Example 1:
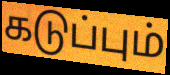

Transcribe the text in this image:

கடுப்பும்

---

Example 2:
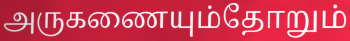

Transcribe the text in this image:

அருகணையும்தோறும்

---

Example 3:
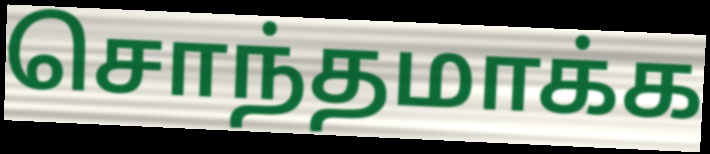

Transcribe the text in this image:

சொந்தமாக்க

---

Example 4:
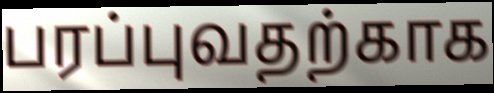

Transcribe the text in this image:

பரப்புவதற்காக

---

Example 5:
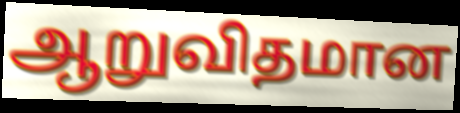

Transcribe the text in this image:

ஆறுவிதமான